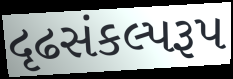
દૃઢસંકલ્પરૂપ